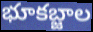
భూకబ్జాల